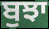
ਬੁਝਾ